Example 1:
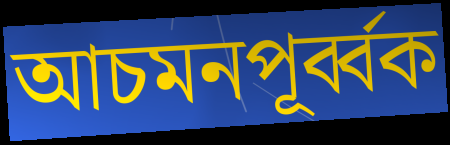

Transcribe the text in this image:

আচমনপূর্ব্বক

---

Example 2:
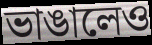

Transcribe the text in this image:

ভাঙালেও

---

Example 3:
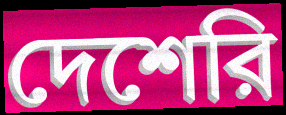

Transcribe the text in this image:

দেশেরি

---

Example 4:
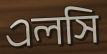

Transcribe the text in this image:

এলসি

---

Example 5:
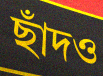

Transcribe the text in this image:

ছাঁদও